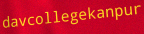
davcollegekanpur